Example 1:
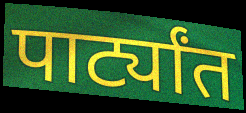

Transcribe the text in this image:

पार्ट्यांत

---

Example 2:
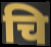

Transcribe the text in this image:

चि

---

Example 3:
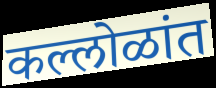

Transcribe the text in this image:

कल्लोळांत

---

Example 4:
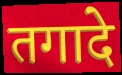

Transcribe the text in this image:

तगादे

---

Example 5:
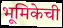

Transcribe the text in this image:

भूमिकेची